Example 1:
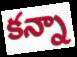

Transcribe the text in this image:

కన్నా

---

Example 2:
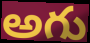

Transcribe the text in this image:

అగు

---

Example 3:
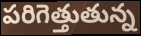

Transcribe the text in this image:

పరిగెత్తుతున్న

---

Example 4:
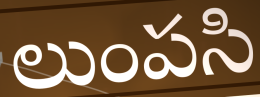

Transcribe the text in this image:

లుంపసి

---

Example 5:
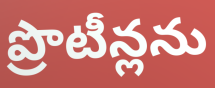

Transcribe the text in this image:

ప్రొటీన్లను